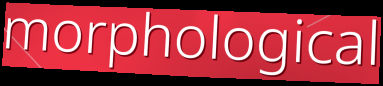
morphological